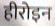
हीरोइन